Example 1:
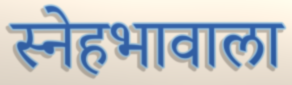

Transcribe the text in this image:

स्नेहभावाला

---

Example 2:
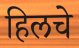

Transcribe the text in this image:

हिलचे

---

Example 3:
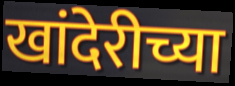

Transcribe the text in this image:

खांदेरीच्या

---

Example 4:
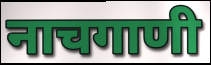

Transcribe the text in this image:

नाचगाणी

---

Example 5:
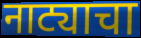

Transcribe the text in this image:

नाट्याचा